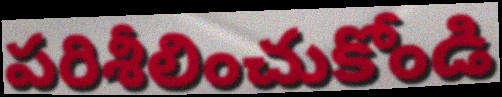
పరిశీలించుకోండి